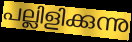
പല്ലിളിക്കുന്നു